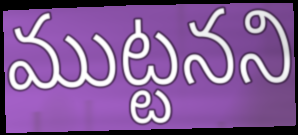
ముట్టనని